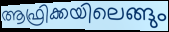
ആഫ്രിക്കയിലെങ്ങും